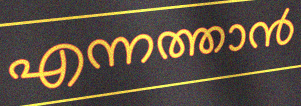
എന്നത്താൻ